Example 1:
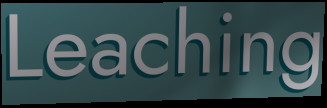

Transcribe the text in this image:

Leaching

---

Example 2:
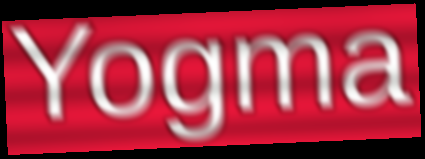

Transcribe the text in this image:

Yogma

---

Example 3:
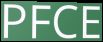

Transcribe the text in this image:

PFCE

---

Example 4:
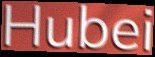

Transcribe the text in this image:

Hubei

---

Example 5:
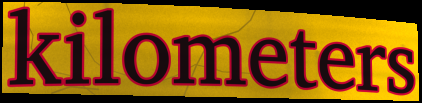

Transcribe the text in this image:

kilometers